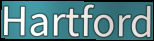
Hartford